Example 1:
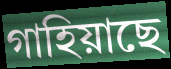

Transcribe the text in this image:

গাহিয়াছে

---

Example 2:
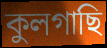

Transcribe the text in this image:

কুলগাছি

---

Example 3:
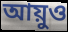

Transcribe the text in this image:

আয়ুও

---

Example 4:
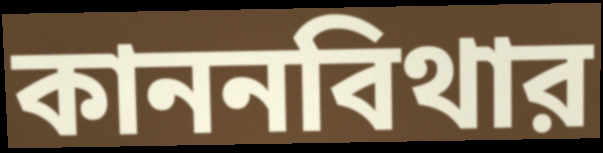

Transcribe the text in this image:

কাননবিথার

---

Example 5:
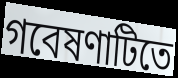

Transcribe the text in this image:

গবেষণাটিতে